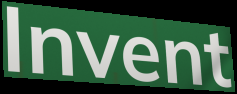
Invent